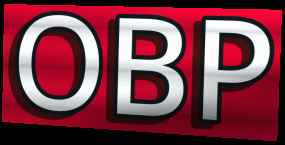
OBP